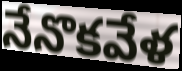
నేనొకవేళ